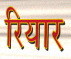
रियार